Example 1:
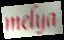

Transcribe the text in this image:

melya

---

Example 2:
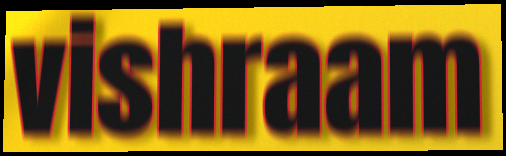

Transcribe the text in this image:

vishraam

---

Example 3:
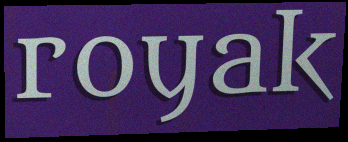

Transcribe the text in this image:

royak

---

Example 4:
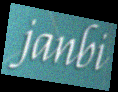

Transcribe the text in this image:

janbi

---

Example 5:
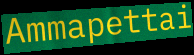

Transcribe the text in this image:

Ammapettai